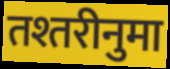
तश्तरीनुमा